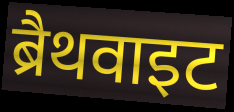
ब्रैथवाइट